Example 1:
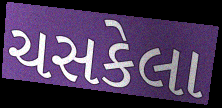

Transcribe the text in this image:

ચસકેલા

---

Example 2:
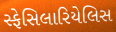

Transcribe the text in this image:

સ્ફેસિલારિયેલિસ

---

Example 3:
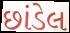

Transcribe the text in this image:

છાંડેલ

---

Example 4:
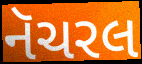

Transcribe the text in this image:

નૅચરલ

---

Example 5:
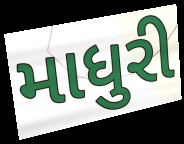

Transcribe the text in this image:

માધુરી